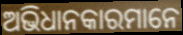
ଅଭିଧାନକାରମାନେ